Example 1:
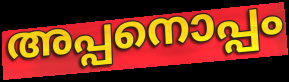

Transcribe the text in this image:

അപ്പനൊപ്പം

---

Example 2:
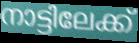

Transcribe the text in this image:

നാട്ടിലേക്ക്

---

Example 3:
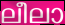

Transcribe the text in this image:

ലീലാ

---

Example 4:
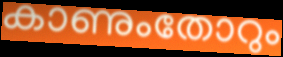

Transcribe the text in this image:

കാണുംതോറും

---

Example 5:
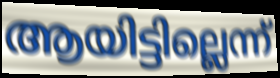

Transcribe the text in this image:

ആയിട്ടില്ലെന്ന്